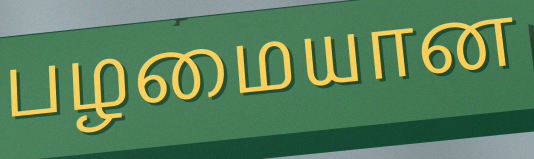
பழமையான